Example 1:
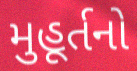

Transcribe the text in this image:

મુહૂર્તનો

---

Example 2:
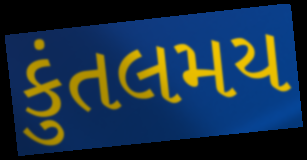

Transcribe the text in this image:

કુંતલમય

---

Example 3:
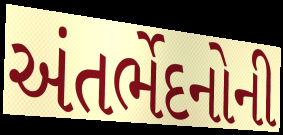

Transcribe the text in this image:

અંતર્ભેદનોની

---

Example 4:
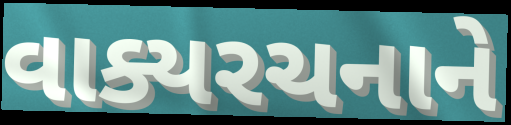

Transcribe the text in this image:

વાક્યરચનાને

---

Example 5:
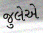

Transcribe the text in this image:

જુલેએ